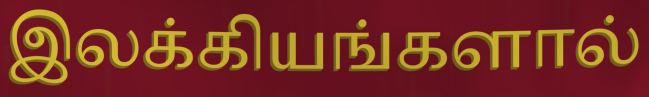
இலக்கியங்களால்